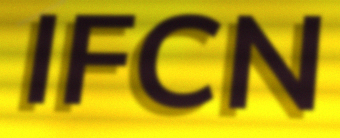
IFCN